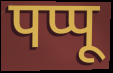
पप्पू